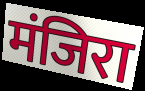
मंजिरा